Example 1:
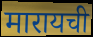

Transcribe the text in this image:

मारायची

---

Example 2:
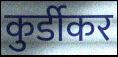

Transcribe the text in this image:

कुर्डीकर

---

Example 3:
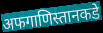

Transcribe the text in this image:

अफगाणिस्तानकडे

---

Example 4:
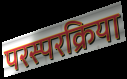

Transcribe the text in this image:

परस्परक्रिया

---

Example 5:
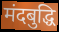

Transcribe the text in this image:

मंदबुद्धि